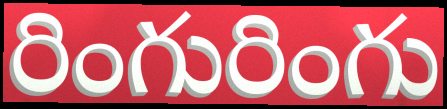
రింగురింగు